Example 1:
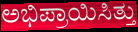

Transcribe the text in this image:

ಅಭಿಪ್ರಾಯಿಸಿತ್ತು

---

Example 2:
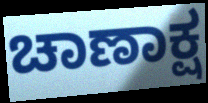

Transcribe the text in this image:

ಚಾಣಾಕ್ಷ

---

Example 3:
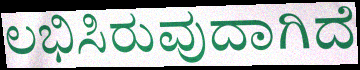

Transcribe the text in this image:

ಲಭಿಸಿರುವುದಾಗಿದೆ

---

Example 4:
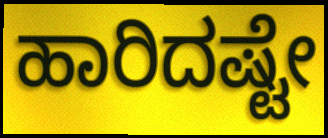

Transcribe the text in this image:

ಹಾರಿದಷ್ಟೇ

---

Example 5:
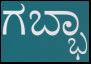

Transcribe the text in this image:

ಗಬ್ಭಾ